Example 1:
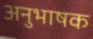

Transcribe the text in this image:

अनुभाषक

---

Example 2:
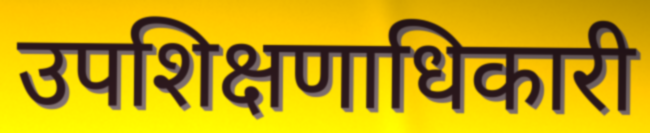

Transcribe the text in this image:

उपशिक्षणाधिकारी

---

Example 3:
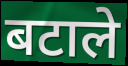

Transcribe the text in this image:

बटाले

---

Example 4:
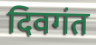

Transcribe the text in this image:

दिवगंत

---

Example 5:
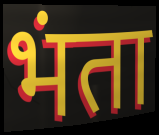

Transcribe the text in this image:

भंता